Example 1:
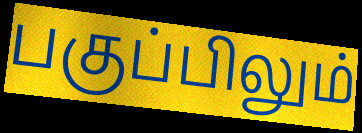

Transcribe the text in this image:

பகுப்பிலும்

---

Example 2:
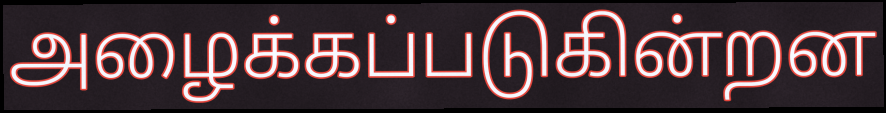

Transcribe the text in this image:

அழைக்கப்படுகின்றன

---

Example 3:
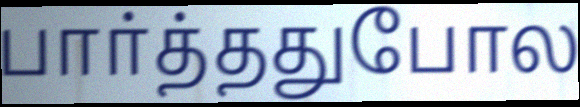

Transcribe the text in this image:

பார்த்ததுபோல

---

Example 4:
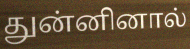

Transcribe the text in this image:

துன்னினால்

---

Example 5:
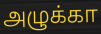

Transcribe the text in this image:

அழுக்கா